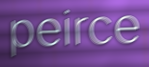
peirce